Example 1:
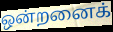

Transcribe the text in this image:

ஒன்றனைக்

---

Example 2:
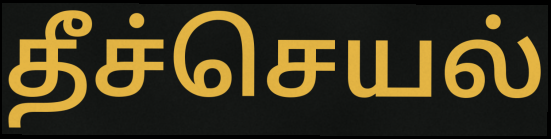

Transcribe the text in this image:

தீச்செயல்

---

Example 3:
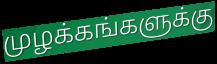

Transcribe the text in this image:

முழக்கங்களுக்கு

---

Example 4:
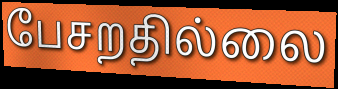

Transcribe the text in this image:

பேசறதில்லை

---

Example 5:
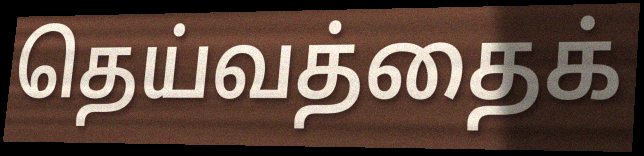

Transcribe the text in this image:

தெய்வத்தைக்